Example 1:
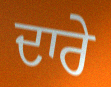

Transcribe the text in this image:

ਦਾਰੇ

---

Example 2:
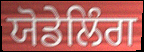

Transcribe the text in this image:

ਯੋਡੇਲਿੰਗ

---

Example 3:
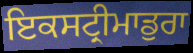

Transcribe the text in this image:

ਇਕਸਟ੍ਰੀਮਾਡੁਰਾ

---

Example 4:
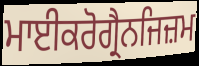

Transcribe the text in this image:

ਮਾਈਕਰੋਗ੍ਰੈਨਜਿਜ਼ਮ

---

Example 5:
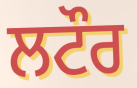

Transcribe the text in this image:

ਲਟੌਰ